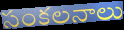
సంకలనాలు